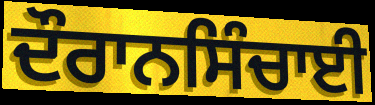
ਦੌਰਾਨਸਿੰਚਾਈ